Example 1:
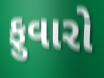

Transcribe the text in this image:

ફુવારો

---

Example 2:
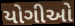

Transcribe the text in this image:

યોગીઓ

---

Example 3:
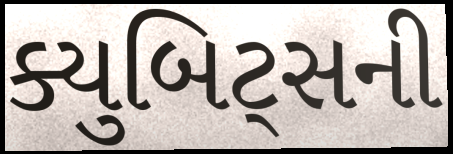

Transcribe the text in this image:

ક્યુબિટ્સની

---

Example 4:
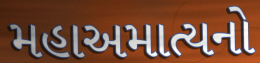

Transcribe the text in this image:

મહાઅમાત્યનો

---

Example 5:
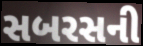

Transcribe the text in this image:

સબરસની